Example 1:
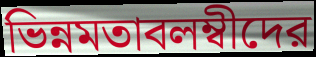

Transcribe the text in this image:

ভিন্নমতাবলম্বীদের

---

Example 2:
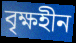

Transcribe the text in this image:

বৃক্ষহীন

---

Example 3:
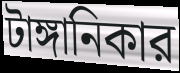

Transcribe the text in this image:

টাঙ্গানিকার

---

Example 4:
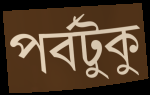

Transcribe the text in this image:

পর্বটুকু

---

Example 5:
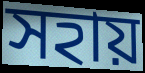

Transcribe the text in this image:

সহায়